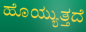
ಹೊಯ್ಯುತ್ತದೆ